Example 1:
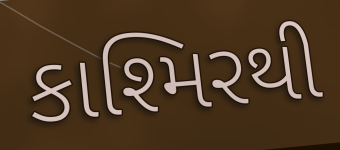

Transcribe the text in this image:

કાશ્મિરથી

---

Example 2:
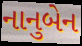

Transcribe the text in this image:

નાનુબેન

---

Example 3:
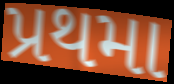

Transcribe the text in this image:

પ્રથમા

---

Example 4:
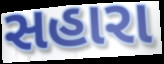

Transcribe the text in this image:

સહારા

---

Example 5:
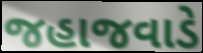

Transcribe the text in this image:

જહાજવાડે